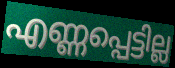
എണ്ണപ്പെട്ടില്ല